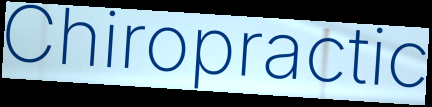
Chiropractic